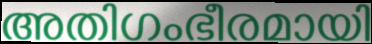
അതിഗംഭീരമായി